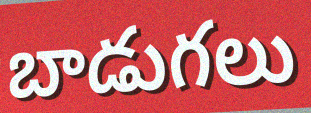
బాడుగలు